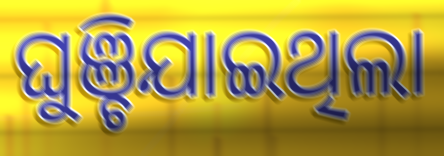
ଘୁଞ୍ଚିଯାଇଥିଲା